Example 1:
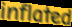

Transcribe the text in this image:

inflated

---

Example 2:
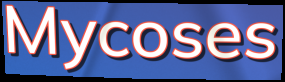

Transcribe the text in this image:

Mycoses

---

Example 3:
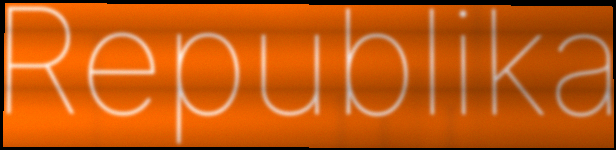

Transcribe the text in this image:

Republika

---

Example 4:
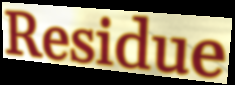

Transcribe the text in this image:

Residue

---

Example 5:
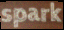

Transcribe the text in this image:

spark